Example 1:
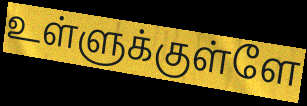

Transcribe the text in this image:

உள்ளுக்குள்ளே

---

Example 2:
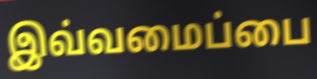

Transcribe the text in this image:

இவ்வமைப்பை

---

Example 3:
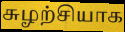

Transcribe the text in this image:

சுழற்சியாக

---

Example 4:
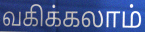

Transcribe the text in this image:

வகிக்கலாம்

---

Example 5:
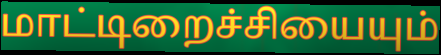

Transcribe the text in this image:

மாட்டிறைச்சியையும்